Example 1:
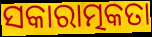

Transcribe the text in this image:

ସକାରାତ୍ମକତା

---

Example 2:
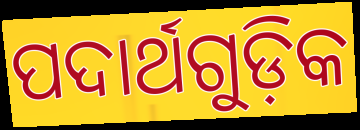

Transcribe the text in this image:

ପଦାର୍ଥଗୁଡ଼ିକ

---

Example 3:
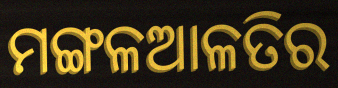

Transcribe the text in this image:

ମଙ୍ଗଳଆଳତିର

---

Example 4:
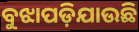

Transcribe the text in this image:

ବୁଝାପଡ଼ିଯାଉଛି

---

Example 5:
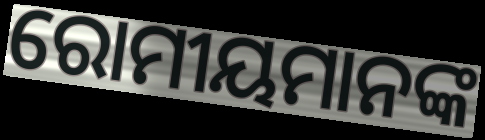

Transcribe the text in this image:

ରୋମୀୟମାନଙ୍କ